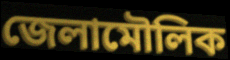
জেলামৌলিক